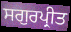
ਸਗੁਰਪ੍ਰੀਤ